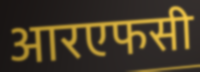
आरएफसी